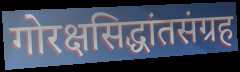
गोरक्षसिद्धांतसंग्रह